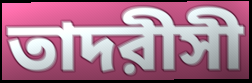
তাদরীসী